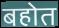
बहोत